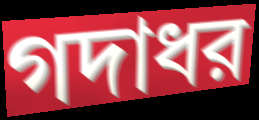
গদাধর